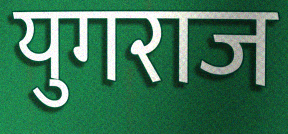
युगराज